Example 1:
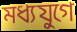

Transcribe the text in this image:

মধ্যযুগে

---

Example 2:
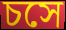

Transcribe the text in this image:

চসে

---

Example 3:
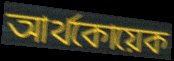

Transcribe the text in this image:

আর্থকোয়েক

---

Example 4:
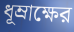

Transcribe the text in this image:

ধূম্রাক্ষের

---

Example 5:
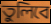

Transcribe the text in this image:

তুলিবে